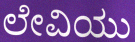
ಲೇವಿಯು